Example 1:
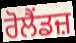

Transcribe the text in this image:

ਰੋਲੈਂਡਜ਼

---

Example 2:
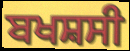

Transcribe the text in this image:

ਬਖਸ਼ਸੀ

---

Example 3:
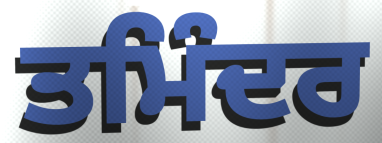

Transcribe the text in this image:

ਤਮਿੰਦਰ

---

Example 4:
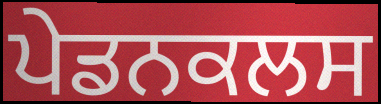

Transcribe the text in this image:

ਪੇਡਨਕਲਸ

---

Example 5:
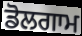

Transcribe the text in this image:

ਡੋਲਗਾਮ